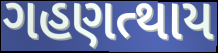
ગહણત્થાય